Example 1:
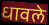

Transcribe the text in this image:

धावले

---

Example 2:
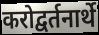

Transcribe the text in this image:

करोद्वर्तनार्थे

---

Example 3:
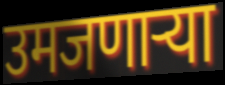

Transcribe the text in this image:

उमजणाऱ्या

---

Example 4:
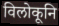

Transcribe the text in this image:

विलोकूनि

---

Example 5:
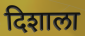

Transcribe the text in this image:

दिशाला